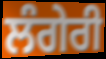
ਲੰਗੇਰੀ